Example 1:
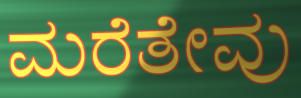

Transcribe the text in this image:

ಮರೆತೇವು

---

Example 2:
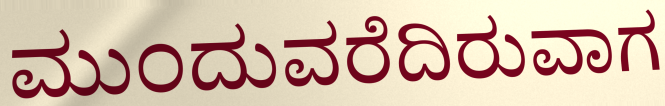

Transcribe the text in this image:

ಮುಂದುವರೆದಿರುವಾಗ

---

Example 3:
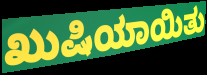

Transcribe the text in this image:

ಖುಷಿಯಾಯಿತು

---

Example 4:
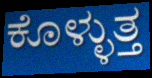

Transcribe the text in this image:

ಕೊಳ್ಳುತ್ತ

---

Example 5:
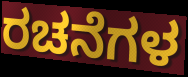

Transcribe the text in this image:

ರಚನೆಗಳ